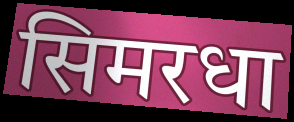
सिमरधा